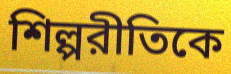
শিল্পরীতিকে